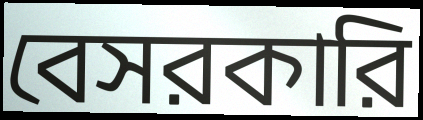
বেসরকারি